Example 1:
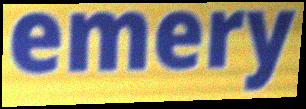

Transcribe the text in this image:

emery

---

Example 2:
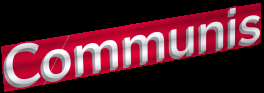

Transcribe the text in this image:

Communis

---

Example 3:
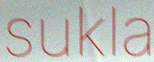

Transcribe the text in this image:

sukla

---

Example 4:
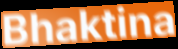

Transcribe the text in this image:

Bhaktina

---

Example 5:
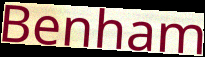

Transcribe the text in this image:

Benham